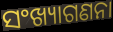
ସଂଖ୍ୟାଗଣନା